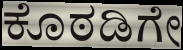
ಕೊಠಡಿಗೇ